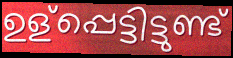
ഉള്പ്പെട്ടിട്ടുണ്ട്